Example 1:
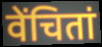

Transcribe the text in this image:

वेंचितां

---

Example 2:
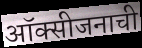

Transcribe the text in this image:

ऑक्सीजनाची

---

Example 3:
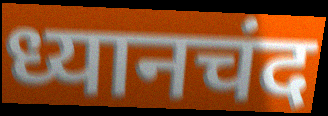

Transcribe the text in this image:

ध्यानचंद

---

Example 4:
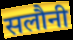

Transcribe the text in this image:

सलौनी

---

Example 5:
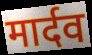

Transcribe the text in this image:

मार्दव